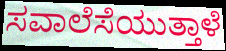
ಸವಾಲೆಸೆಯುತ್ತಾಳೆ